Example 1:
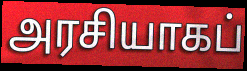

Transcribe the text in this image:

அரசியாகப்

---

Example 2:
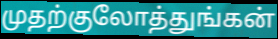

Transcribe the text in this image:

முதற்குலோத்துங்கன்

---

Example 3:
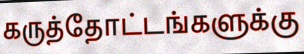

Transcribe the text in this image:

கருத்தோட்டங்களுக்கு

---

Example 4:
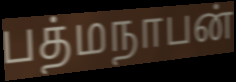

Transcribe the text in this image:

பத்மநாபன்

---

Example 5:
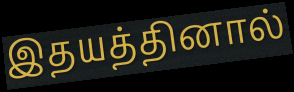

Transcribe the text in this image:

இதயத்தினால்